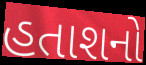
હતાશનો